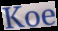
Koe